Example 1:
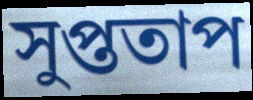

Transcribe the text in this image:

সুপ্ততাপ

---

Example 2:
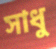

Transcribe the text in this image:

সাধু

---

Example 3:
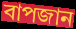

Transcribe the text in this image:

বাপজান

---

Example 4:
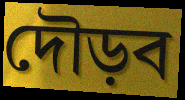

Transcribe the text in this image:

দৌড়ব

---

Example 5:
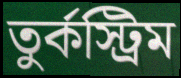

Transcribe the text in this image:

তুর্কস্ট্রিম